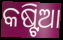
କଷ୍ଟିଆ